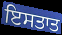
ਇਸਤਾਤ